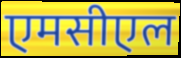
एमसीएल